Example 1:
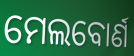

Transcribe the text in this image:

ମେଲବୋର୍ଣ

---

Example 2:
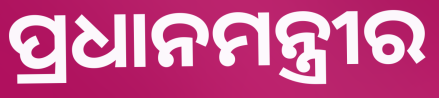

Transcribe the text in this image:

ପ୍ରଧାନମନ୍ତ୍ରୀର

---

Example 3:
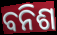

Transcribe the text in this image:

ବନିଶ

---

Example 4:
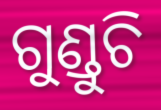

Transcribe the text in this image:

ଗୁଣ୍ଡୁଚି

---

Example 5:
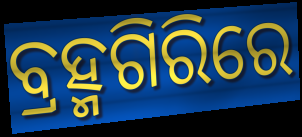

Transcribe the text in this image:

ବ୍ରହ୍ମଗିରିରେ